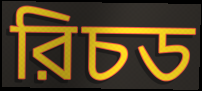
রিচড